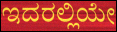
ಇದರಲ್ಲಿಯೇ